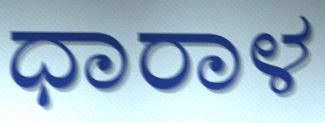
ಧಾರಾಳ